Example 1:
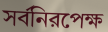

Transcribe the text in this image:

সর্বনিরপেক্ষ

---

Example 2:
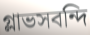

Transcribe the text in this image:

গ্লাভসবন্দি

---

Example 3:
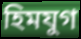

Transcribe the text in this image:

হিমযুগ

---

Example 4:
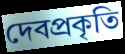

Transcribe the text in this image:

দেবপ্রকৃতি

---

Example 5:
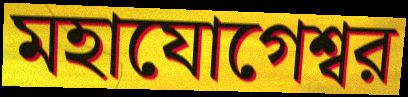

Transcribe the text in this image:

মহাযোগেশ্বর